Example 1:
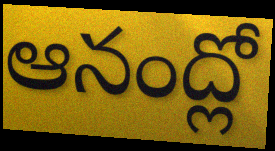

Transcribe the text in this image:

ఆనంద్లో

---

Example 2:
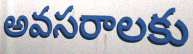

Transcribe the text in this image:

అవసరాలకు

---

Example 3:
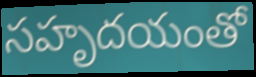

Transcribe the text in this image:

సహృదయంతో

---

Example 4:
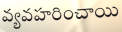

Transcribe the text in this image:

వ్యవహరించాయి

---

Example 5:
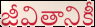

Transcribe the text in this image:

జీవితానికీ